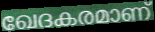
ഖേദകരമാണ്